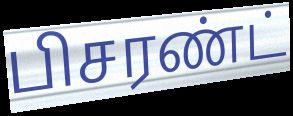
பிசரண்ட்